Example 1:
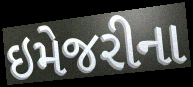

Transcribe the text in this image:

ઇમેજરીના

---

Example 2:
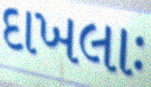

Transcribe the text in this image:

દાખલાઃ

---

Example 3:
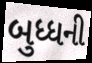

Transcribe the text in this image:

બુધ્ધની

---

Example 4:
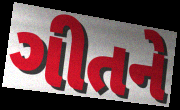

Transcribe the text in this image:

ગીતને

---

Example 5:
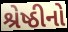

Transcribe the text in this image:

શ્રેષ્ઠીનો